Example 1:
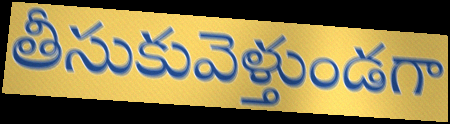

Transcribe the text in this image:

తీసుకువెళ్తుండగా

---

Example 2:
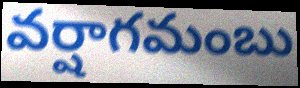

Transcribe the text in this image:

వర్షాగమంబు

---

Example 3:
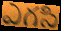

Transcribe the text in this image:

ఎగసి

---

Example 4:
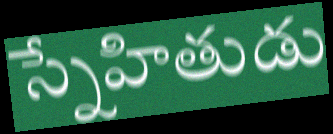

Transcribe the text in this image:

స్నేహితుడు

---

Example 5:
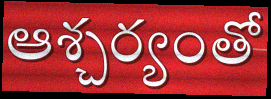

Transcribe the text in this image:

ఆశ్చర్యంతో